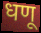
धणू